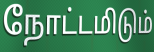
நோட்டமிடும்